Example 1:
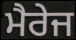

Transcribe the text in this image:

ਮੈਰੇਜ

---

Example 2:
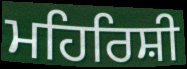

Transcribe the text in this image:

ਮਹਿਰਿਸ਼ੀ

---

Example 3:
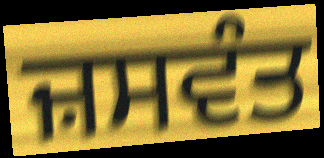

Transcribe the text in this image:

ਜ਼ਸਵੰਤ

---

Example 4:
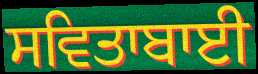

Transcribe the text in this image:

ਸਵਿਤਾਬਾਈ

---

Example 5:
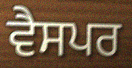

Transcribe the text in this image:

ਵੈਸਪਰ